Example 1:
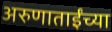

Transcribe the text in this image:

अरुणाताईंच्या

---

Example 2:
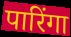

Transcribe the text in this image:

पारिंगा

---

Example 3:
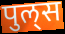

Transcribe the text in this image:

पुल्स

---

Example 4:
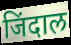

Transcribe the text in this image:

जिंदाल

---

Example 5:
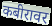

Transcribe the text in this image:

कबीरावर